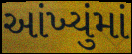
આંખ્યુંમાં